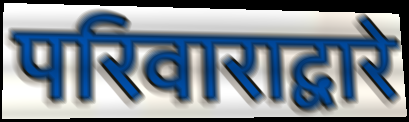
परिवाराद्वारे